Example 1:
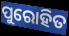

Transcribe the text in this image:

ପୁରୋହିତ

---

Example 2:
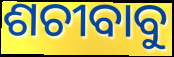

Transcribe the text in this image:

ଶଚୀବାବୁ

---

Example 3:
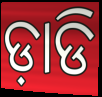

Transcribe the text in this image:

ଡ଼ାଡି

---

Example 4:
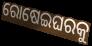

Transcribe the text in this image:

ରୋଷେଇଘରକୁ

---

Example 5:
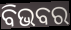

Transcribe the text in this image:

ବିଭବର